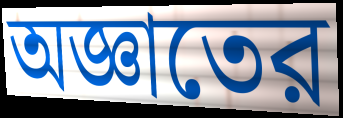
অজ্ঞাতের